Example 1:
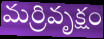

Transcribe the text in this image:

మర్రివృక్షం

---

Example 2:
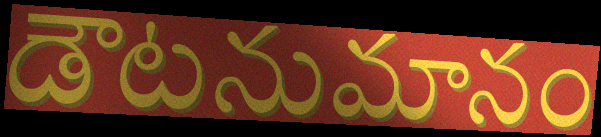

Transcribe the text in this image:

డౌటనుమానం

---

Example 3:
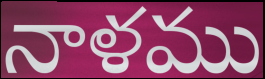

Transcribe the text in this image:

నాళము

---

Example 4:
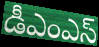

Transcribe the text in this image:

డీఎంఎస్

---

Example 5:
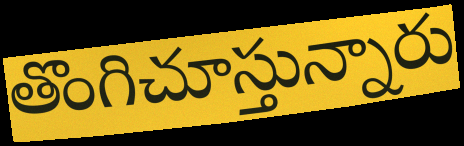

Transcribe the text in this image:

తొంగిచూస్తున్నారు